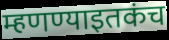
म्हणण्याइतकंच